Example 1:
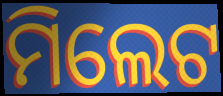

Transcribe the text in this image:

ମିଲେଟ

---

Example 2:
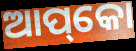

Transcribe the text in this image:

ଆପ୍‌କୋ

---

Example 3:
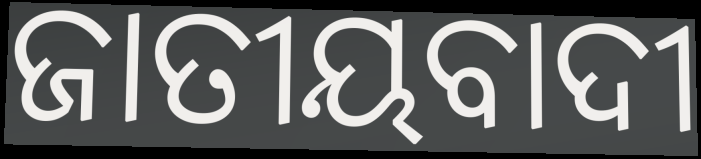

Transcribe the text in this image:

ଜାତୀୟବାଦୀ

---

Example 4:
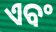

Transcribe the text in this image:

ଏବଂ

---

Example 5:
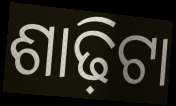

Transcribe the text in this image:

ଶାଢ଼ିଟା